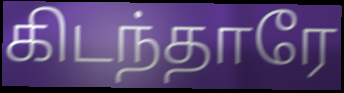
கிடந்தாரே